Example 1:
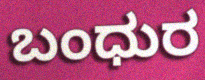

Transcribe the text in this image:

ಬಂಧುರ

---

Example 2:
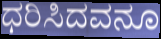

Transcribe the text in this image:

ಧರಿಸಿದವನೂ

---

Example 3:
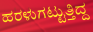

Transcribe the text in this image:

ಹರಳುಗಟ್ಟುತ್ತಿದ್ದ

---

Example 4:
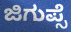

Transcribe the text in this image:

ಜಿಗುಪ್ಸೆ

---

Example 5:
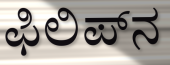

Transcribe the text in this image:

ಫಿಲಿಪ್‌ನ